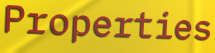
Properties